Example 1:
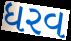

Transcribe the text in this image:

ધરવ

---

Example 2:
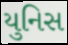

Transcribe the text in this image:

યુનિસ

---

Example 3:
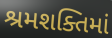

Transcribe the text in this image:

શ્રમશક્તિમાં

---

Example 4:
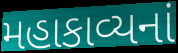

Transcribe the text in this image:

મહાકાવ્યનાં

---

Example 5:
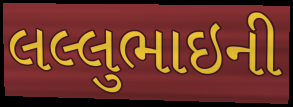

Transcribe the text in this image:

લલ્લુભાઇની